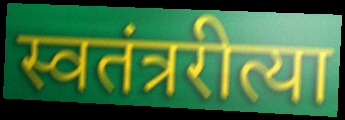
स्वतंत्ररीत्या